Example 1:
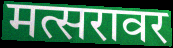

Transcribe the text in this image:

मत्सरावर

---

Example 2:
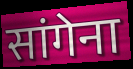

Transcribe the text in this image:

सांगेना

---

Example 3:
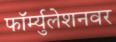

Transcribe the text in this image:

फॉर्म्युलेशनवर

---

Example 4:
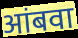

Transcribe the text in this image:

आंबवा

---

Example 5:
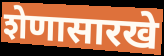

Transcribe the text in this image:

शेणासारखे